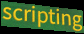
scripting